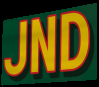
JND